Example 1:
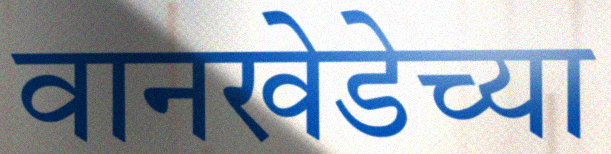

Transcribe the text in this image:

वानखेडेच्या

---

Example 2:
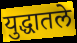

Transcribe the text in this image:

युद्धातले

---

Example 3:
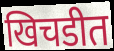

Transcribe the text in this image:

खिचडीत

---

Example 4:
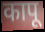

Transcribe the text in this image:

कापू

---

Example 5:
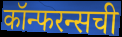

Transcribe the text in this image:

कॉन्फरन्सची